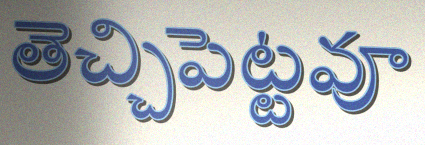
తెచ్చిపెట్టవూ